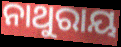
ନାଥୁରାୟ